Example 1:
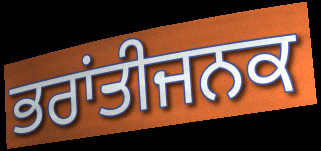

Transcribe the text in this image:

ਭਰਾਂਤੀਜਨਕ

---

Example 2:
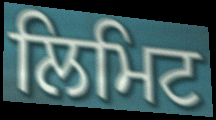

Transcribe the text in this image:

ਲਿਮਿਟ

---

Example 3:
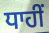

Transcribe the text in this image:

ਧਾਹੀਂ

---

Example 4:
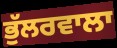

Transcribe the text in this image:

ਭੁੱਲਰਵਾਲਾ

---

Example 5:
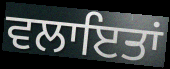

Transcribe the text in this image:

ਵਲਾਇਤਾਂ